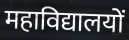
महाविद्यालयों